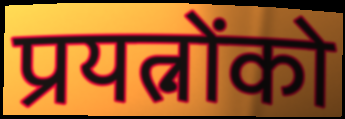
प्रयत्नोंको